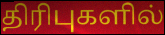
திரிபுகளில்